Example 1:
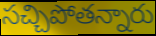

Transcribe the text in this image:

సచ్చిపోతన్నారు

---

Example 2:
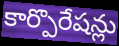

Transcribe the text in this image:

కార్పొరేషన్లు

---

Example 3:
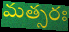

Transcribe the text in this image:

మత్సరః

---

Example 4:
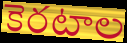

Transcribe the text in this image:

కెరటాల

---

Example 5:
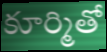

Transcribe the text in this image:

కూర్మితో